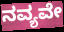
ನವ್ಯವೇ